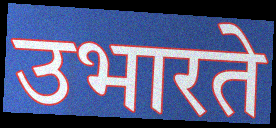
उभारते